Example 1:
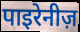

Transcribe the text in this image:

पाइरेनीज़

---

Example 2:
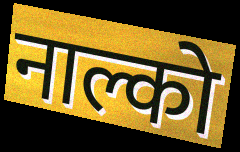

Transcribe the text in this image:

नाल्को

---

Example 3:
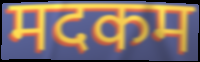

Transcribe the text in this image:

मदकम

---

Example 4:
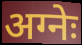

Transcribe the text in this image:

अग्नेः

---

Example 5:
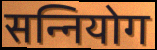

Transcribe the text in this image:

सन्नियोग